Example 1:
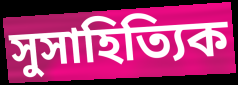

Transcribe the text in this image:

সুসাহিত্যিক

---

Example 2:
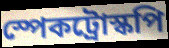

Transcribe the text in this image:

স্পেকট্রোস্কপি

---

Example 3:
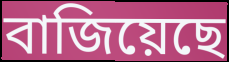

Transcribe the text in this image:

বাজিয়েছে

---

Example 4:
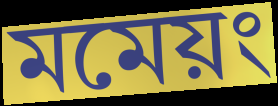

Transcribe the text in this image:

মমেয়ং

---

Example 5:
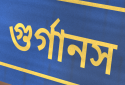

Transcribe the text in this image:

গুর্গানস